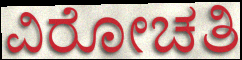
ವಿರೋಚತಿ